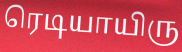
ரெடியாயிரு